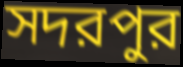
সদরপুর